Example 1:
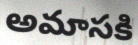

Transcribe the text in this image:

అమాసకి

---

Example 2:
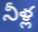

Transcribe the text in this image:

నీళ్ల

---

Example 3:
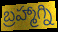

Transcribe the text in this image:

బ్రహ్మాగ్ని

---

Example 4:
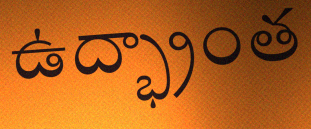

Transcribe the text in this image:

ఉద్భ్రాంత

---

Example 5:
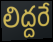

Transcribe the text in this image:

లిద్దరే